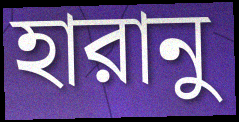
হারানু